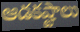
ఆడకష్టాలు